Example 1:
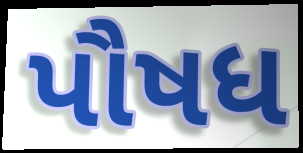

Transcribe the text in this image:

પૌષધ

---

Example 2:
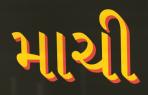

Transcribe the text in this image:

માચી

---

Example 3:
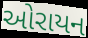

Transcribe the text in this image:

ઓરાયન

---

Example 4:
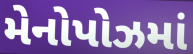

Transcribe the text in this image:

મેનોપોઝમાં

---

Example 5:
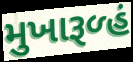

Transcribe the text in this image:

મુખારૂળ્હં